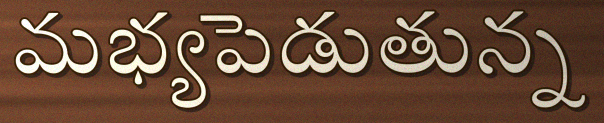
మభ్యపెడుతున్న